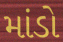
માંડો